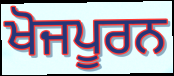
ਖੋਜਪੂਰਨ